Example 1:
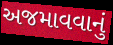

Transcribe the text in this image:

અજમાવવાનું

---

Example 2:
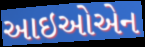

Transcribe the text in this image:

આઇઓએન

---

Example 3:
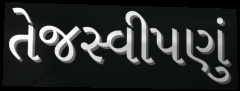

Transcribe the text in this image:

તેજસ્વીપણું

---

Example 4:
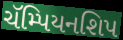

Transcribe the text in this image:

ચૅમ્પિયનશિપ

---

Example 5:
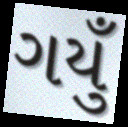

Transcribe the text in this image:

ગયુઁ